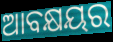
ଆବକ୍ଷୟର